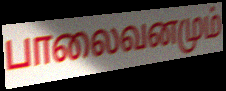
பாலைவனமும்